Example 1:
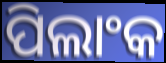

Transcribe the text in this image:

ପିଲାଂକ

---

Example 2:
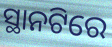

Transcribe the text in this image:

ସ୍ଥାନଟିରେ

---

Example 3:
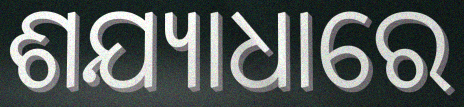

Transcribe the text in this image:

ଶଯ୍ୟାଧାରେ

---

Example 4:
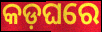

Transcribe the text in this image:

କଡ଼ଘରେ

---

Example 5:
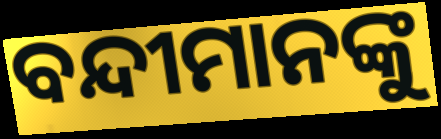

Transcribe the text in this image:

ବନ୍ଦୀମାନଙ୍କୁ